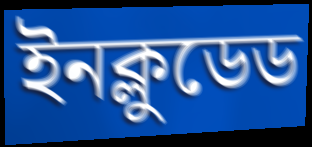
ইনক্লুডেড